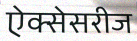
ऐक्सेसरीज